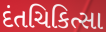
દંતચિકિત્સા